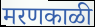
मरणकाळी